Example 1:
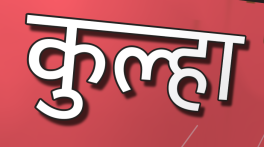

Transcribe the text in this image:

कुल्हा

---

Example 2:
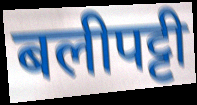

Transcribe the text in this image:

बलीपट्टी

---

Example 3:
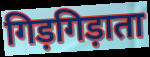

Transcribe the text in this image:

गिड़गिड़ाता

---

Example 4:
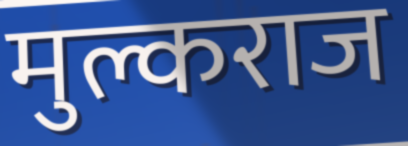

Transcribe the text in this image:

मुल्कराज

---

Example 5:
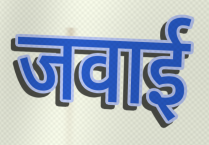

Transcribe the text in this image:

जवाई